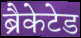
ब्रैकेटेड